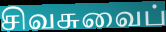
சிவசுவைப்